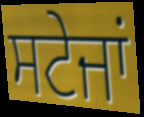
ਸਟੇਜਾਂ